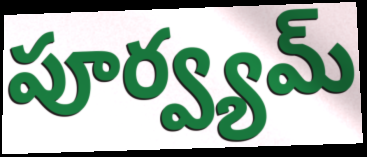
పూర్వ్యమ్